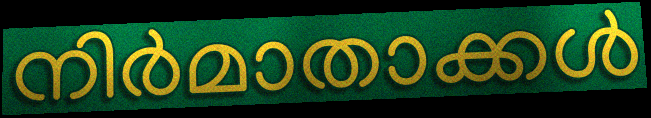
നിർമാതാക്കൾ